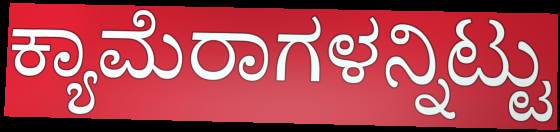
ಕ್ಯಾಮೆರಾಗಳನ್ನಿಟ್ಟು